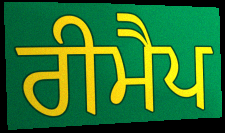
ਰੀਮੈਪ